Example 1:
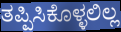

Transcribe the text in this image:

ತಪ್ಪಿಸಿಕೊಳ್ಳಲಿಲ್ಲ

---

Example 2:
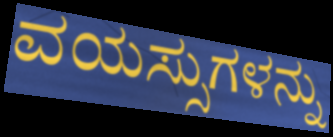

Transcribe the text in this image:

ವಯಸ್ಸುಗಳನ್ನು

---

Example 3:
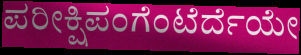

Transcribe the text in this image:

ಪರೀಕ್ಷಿಪಂಗೆಂಟೆರ್ದೆಯೇ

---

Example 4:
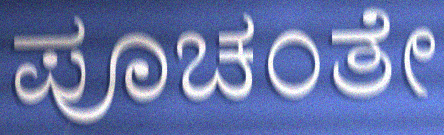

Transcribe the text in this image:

ಪೂಚಂತೇ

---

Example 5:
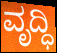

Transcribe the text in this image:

ವೃದ್ಧಿ